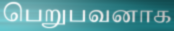
பெறுபவனாக